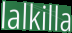
lalkilla